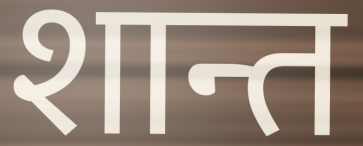
शान्त